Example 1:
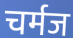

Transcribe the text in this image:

चर्मज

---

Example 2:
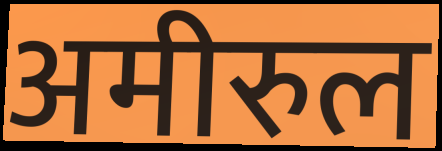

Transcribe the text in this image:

अमीरुल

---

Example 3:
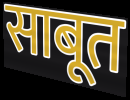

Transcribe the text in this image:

साबूत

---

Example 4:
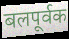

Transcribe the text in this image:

बलपूर्वक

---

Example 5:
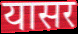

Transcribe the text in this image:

यासर